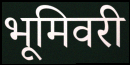
भूमिवरी